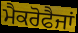
ਮੈਕਰੋਫੈਜਾਂ